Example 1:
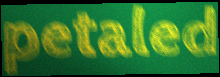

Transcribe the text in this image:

petaled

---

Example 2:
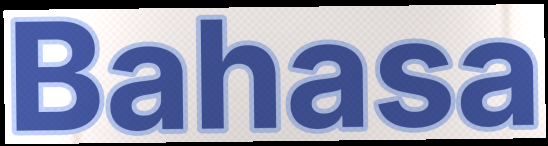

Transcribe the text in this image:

Bahasa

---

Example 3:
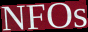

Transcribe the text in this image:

NFOs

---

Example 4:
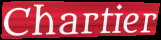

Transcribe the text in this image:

Chartier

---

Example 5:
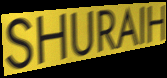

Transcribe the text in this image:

SHURAIH